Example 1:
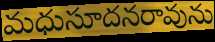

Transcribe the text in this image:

మధుసూదనరావును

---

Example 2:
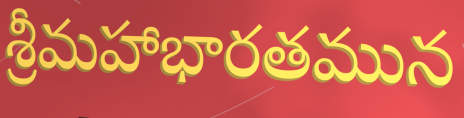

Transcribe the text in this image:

శ్రీమహాభారతమున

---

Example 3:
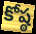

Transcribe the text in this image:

కోష్ఠ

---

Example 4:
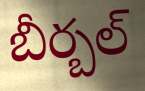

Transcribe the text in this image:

బీర్బల్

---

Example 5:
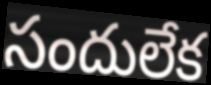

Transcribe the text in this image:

సందులేక